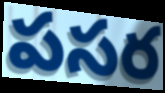
పసర